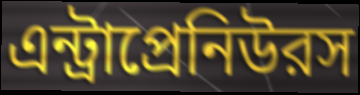
এন্ট্রাপ্রেনিউরস